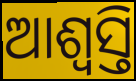
ଆଶ୍ଵସ୍ତି